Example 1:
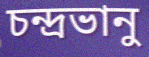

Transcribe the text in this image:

চন্দ্রভানু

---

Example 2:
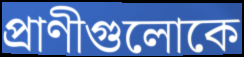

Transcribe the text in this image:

প্রাণীগুলোকে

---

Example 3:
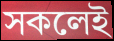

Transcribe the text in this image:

সকলেই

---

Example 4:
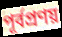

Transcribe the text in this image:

পূর্বপ্রণয়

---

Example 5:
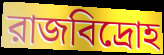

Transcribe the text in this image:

রাজবিদ্রোহ